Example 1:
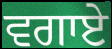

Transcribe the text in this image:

ਵਗਾਏ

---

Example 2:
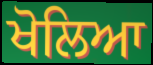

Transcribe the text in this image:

ਖੋਲਿਆ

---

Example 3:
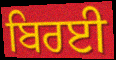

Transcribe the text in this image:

ਬਿਰਈ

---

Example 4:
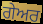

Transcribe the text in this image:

ਗੇਅਰ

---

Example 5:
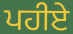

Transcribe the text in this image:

ਪਹੀਏ